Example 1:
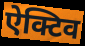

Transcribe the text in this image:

ऐक्टिव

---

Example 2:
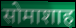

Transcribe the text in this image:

सोमाशाह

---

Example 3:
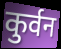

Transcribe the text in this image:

कुर्वन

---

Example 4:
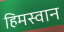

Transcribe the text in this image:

हिमस्वान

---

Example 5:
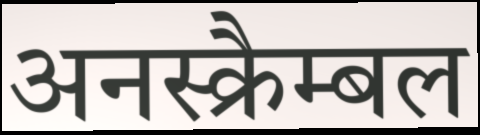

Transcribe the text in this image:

अनस्क्रैम्बल